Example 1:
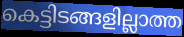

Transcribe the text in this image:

കെട്ടിടങ്ങളില്ലാത്ത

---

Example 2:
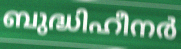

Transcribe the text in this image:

ബുദ്ധിഹീനർ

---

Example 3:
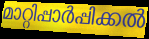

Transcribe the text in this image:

മാറ്റിപ്പാർപ്പിക്കൽ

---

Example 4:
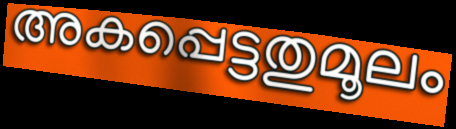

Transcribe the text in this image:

അകപ്പെട്ടതുമൂലം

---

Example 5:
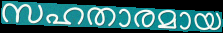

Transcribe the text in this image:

സഹതാരമായ